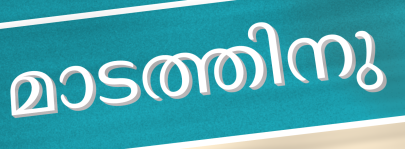
മാടത്തിനു